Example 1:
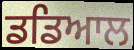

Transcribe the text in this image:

ਡਡਿਆਲ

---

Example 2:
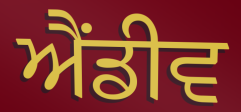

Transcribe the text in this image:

ਐਂਡੀਵ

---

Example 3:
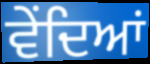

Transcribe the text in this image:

ਵੇਂਦਿਆਂ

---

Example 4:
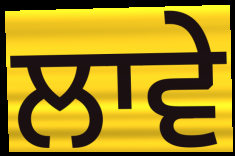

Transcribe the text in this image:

ਲਾਵੇ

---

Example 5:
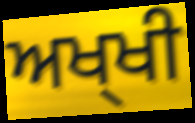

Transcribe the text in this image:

ਅਖ੍ਖੀ